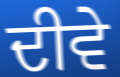
ਦੀਵੇ